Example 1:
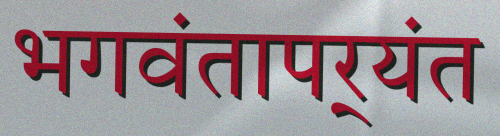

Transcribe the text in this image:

भगवंतापर्यंत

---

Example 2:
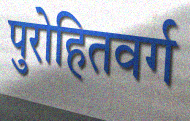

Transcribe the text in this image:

पुरोहितवर्ग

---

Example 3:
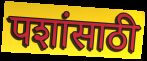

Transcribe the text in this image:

पशांसाठी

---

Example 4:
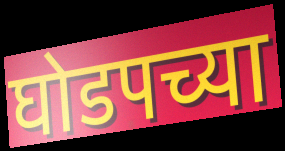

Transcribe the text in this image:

घोडपच्या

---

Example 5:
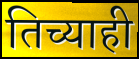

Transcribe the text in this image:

तिच्याही